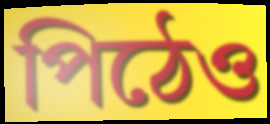
পিঠেও